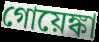
গোয়েঙ্কা